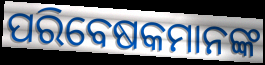
ପରିବେଷକମାନଙ୍କ